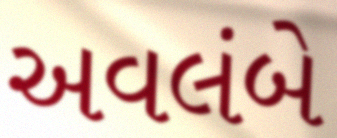
અવલંબે